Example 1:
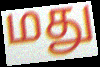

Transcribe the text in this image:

மது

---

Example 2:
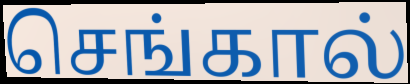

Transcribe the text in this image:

செங்கால்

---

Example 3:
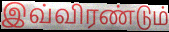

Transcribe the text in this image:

இவ்விரண்டும்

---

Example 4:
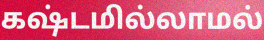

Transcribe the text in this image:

கஷ்டமில்லாமல்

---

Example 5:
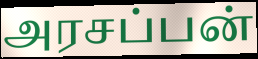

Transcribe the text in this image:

அரசப்பன்